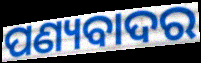
ପଣ୍ୟବାଦର